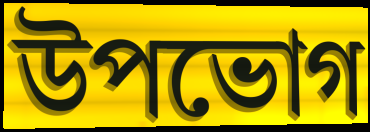
উপভোগ